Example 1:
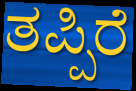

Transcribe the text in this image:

ತಪ್ಪಿರೆ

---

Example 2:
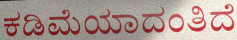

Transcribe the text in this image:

ಕಡಿಮೆಯಾದಂತಿದೆ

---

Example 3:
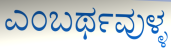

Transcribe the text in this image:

ಎಂಬರ್ಥವುಳ್ಳ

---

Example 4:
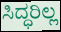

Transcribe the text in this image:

ಸಿದ್ಧರಿಲ್ಲ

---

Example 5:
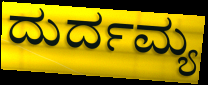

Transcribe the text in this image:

ದುರ್ದಮ್ಯ